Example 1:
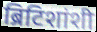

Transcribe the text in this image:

ब्रिटिशांशी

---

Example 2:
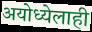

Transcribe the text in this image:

अयोध्येलाही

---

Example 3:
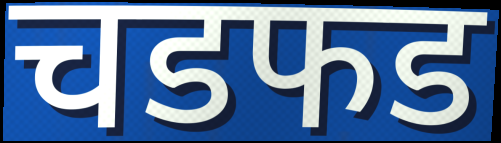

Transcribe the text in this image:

चडफड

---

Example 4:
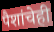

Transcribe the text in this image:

पैशांचेही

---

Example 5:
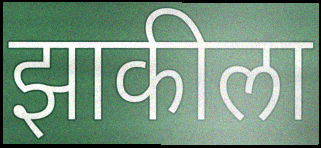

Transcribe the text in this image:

झाकीला